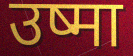
उष्मा